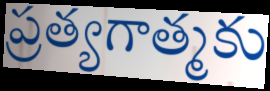
ప్రత్యగాత్మకు